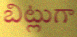
బిట్లుగా